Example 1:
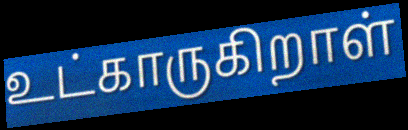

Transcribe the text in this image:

உட்காருகிறாள்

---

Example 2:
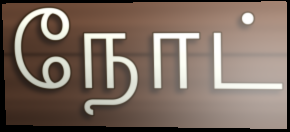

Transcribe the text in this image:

நோட்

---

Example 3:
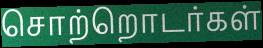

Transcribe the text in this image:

சொற்றொடர்கள்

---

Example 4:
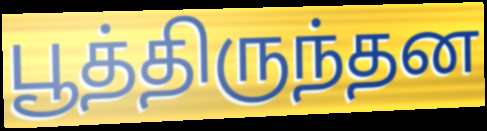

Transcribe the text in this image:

பூத்திருந்தன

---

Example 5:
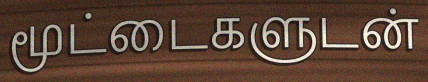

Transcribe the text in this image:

மூட்டைகளுடன்